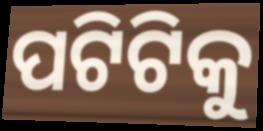
ପଟିଟିକୁ